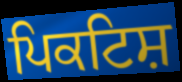
ਪਿਕਟਿਸ਼